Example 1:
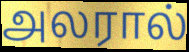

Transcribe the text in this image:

அலரால்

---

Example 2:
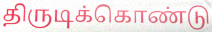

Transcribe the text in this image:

திருடிக்கொண்டு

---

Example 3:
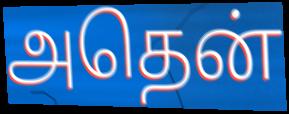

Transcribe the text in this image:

அதென்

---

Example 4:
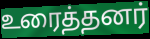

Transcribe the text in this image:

உரைத்தனர்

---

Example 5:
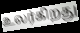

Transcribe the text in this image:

உலர்கிறது